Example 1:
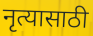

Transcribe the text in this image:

नृत्यासाठी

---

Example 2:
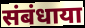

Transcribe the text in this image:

संबंधाया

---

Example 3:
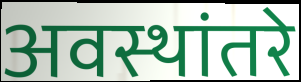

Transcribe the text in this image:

अवस्थांतरे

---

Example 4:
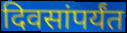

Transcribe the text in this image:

दिवसांपर्यंत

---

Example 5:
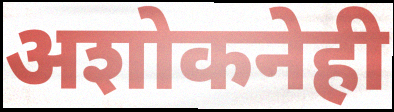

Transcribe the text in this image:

अशोकनेही